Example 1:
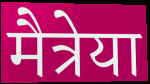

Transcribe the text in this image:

मैत्रेया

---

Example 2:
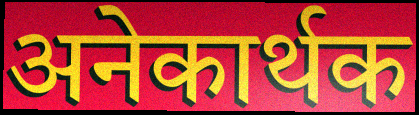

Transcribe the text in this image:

अनेकार्थक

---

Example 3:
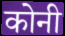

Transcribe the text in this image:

कोनी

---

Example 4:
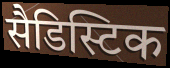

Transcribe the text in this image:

सैडिस्टिक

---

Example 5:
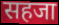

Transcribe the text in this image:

सहजा